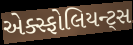
એક્સ્ફોલિયન્ટ્સ